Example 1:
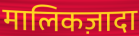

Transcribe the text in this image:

मालिकज़ादा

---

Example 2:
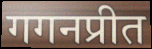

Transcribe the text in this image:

गगनप्रीत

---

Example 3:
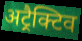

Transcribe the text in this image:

अट्रैक्टिव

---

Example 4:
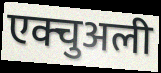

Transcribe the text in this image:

एक्चुअली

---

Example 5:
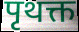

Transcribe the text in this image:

पृथक्त